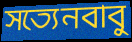
সত্যেনবাবু